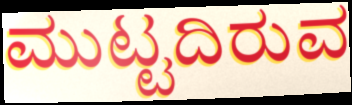
ಮುಟ್ಟದಿರುವ